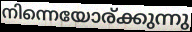
നിന്നെയോര്ക്കുന്നു